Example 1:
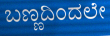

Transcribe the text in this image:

ಬಣ್ಣದಿಂದಲೇ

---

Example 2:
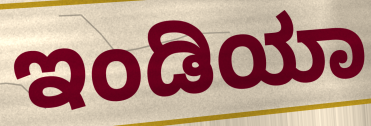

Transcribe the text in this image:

ಇಂಡಿಯಾ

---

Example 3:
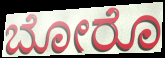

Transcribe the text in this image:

ಬೋರೊ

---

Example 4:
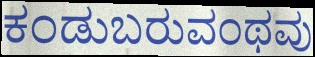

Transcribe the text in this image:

ಕಂಡುಬರುವಂಥವು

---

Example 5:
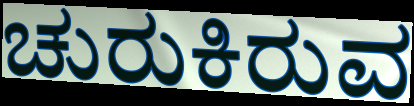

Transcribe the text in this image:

ಚುರುಕಿರುವ